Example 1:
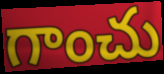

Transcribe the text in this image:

గాంచు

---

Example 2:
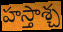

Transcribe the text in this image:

హస్తాశ్చ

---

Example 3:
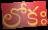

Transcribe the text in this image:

లోకః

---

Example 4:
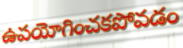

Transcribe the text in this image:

ఉపయోగించకపోవడం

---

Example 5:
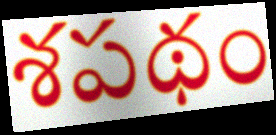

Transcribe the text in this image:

శపథం